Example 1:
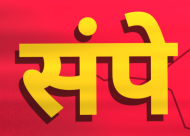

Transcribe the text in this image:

संपे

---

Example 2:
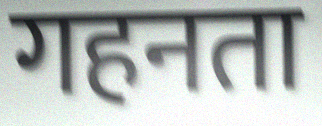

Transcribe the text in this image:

गहनता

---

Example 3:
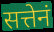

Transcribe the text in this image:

सत्तेनं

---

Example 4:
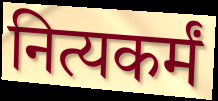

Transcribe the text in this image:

नित्यकर्मं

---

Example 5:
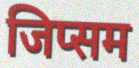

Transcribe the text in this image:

जिप्सम